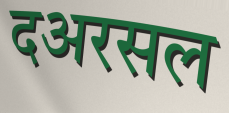
दअरसल